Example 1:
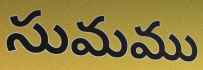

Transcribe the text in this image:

సుమము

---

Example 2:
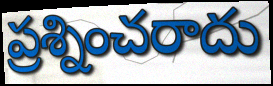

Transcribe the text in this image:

ప్రశ్నించరాదు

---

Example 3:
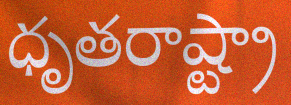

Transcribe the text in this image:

ధృతరాష్ట్రా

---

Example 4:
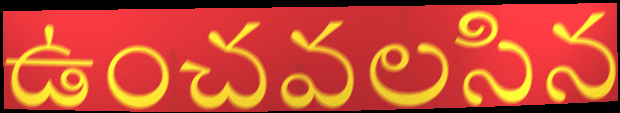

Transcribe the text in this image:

ఉంచవలసిన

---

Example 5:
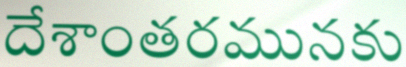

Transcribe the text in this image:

దేశాంతరమునకు